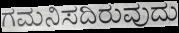
ಗಮನಿಸದಿರುವುದು